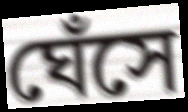
ঘেঁসে